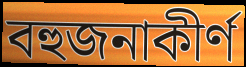
বহুজনাকীর্ণ